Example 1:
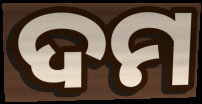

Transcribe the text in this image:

ଦମ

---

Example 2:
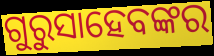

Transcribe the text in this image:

ଗୁରୁସାହେବଙ୍କର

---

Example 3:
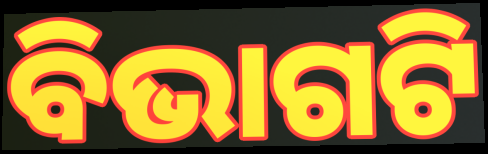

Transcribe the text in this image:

ବିଭାଗଟି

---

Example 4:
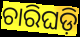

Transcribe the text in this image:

ଚାରିଘଡ଼ି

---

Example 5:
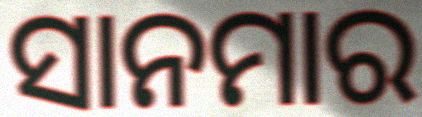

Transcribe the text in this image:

ସାନମାର